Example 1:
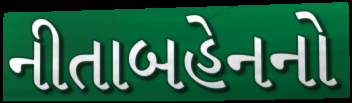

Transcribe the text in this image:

નીતાબહેનનો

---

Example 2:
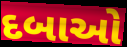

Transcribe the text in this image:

દબાઓ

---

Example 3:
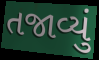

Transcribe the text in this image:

તજાવ્યું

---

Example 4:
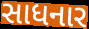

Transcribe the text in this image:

સાધનાર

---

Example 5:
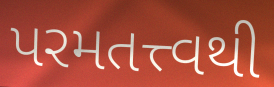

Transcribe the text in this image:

પરમતત્ત્વથી